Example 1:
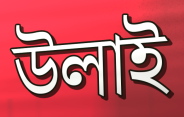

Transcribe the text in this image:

উলাই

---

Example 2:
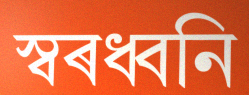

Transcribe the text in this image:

স্বৰধ্বনি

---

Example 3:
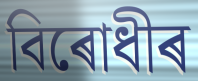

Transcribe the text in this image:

বিৰোধীৰ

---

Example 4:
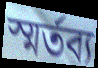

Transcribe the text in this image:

স্মৰ্তব্য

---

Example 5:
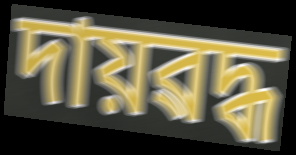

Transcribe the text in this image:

দায়ৱদ্ধ